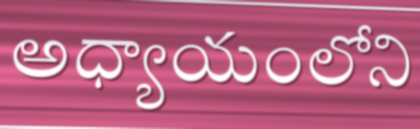
అధ్యాయంలోని